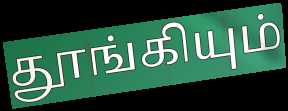
தூங்கியும்